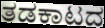
ತಡಕಾಟದ